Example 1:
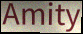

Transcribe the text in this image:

Amity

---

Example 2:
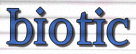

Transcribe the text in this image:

biotic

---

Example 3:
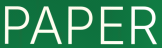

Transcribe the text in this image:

PAPER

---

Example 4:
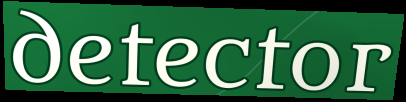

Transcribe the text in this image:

detector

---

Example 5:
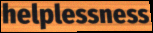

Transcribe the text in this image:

helplessness